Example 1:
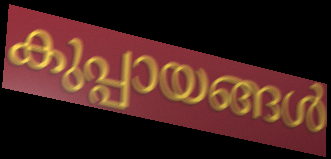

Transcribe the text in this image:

കുപ്പായങ്ങൾ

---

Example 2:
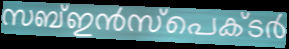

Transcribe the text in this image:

സബ്ഇൻസ്പെക്ടർ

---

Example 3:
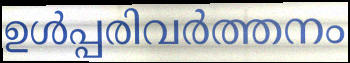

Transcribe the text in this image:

ഉൾപ്പരിവർത്തനം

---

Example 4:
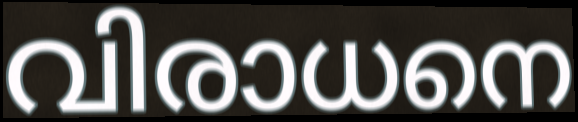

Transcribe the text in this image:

വിരാധനെ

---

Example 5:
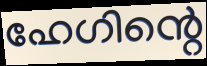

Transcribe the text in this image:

ഹേഗിന്റെ